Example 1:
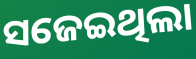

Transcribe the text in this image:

ସଜେଇଥିଲା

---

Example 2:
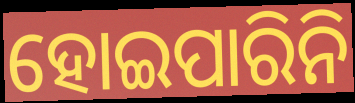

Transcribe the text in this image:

ହୋଇପାରିନି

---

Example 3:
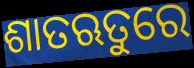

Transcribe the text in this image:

ଶାତଋତୁରେ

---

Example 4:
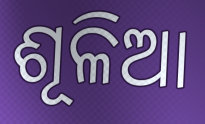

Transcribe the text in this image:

ଶୂଳିଆ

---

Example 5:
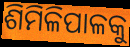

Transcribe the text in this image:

ଶିମିଳିପାଳକୁ